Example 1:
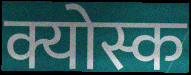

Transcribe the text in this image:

क्योस्क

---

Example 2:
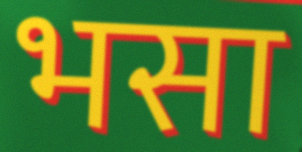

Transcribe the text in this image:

भसा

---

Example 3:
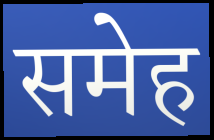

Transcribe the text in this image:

समेह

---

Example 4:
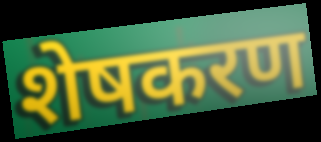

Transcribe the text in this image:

शेषकरण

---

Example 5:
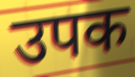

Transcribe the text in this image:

उपक